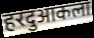
हरदुआकला